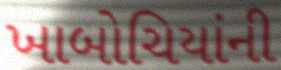
ખાબોચિયાંની